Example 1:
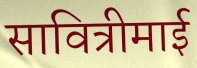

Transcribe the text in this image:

सावित्रीमाई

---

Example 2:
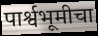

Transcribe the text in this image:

पार्श्वभूमीचा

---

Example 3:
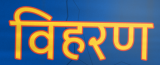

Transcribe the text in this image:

विहरण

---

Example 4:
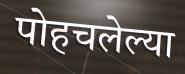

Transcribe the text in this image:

पोहचलेल्या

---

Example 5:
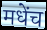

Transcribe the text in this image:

मधेंच